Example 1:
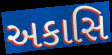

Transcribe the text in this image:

અકાસિ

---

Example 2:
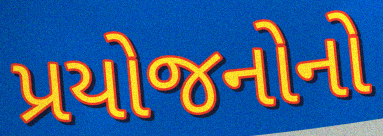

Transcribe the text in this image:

પ્રયોજનોનો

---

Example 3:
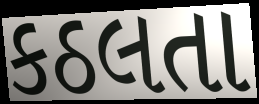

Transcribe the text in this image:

કઠલતા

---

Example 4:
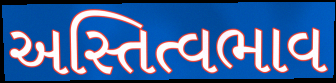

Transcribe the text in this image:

અસ્તિત્વભાવ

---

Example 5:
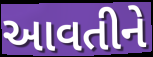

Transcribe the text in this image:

આવતીને